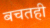
बचतही